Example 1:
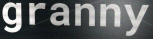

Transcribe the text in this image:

granny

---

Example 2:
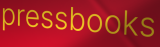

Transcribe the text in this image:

pressbooks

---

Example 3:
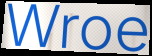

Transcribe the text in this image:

Wroe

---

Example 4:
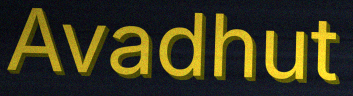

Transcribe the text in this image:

Avadhut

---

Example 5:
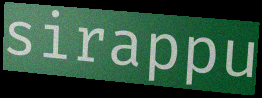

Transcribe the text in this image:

sirappu